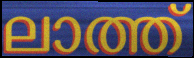
ലാത്ത്